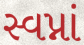
સ્વપ્નાં